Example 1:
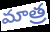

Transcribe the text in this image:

మాత్ర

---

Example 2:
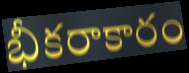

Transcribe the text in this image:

భీకరాకారం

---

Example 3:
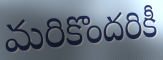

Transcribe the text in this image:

మరికొందరికీ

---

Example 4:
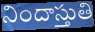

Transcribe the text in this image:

నిందాస్తుతి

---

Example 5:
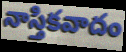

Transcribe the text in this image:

నాస్తికవాదం